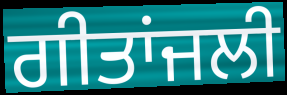
ਗੀਤਾਂਜਲੀ